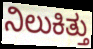
ನಿಲುಕಿತ್ತು